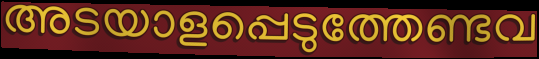
അടയാളപ്പെടുത്തേണ്ടവ